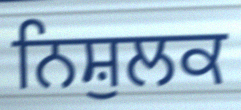
ਨਿਸ਼ੁਲਕ